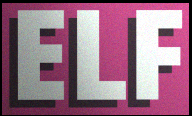
ELF